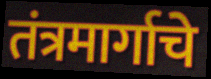
तंत्रमार्गाचे